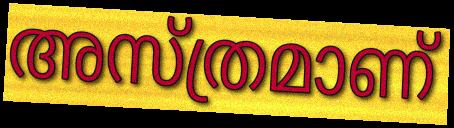
അസ്ത്രമാണ്